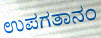
ಉಪಗತಾನಂ